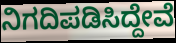
ನಿಗದಿಪಡಿಸಿದ್ದೇವೆ